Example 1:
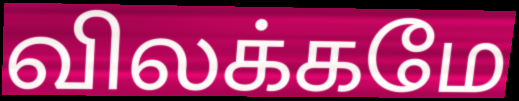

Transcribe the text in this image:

விலக்கமே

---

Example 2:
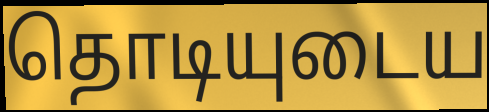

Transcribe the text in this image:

தொடியுடைய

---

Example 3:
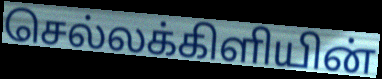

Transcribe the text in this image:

செல்லக்கிளியின்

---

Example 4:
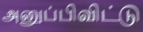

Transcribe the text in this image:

அனுப்பிவிட்டு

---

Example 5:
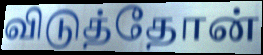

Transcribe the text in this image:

விடுத்தோன்